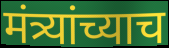
मंत्र्यांच्याच